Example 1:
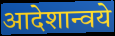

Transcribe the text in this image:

आदेशान्वये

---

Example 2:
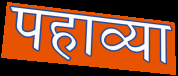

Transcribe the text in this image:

पहाव्या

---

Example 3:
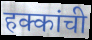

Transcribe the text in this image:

हक्कांची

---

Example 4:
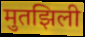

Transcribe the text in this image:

मुतझिली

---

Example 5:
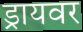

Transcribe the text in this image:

ड्रायवर